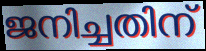
ജനിച്ചതിന്